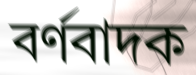
বৰ্ণবাদক